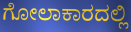
ಗೋಲಾಕಾರದಲ್ಲಿ